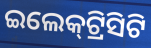
ଇଲେକ୍‌ଟ୍ରିସିଟି